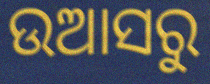
ଉଆସରୁ